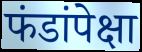
फंडांपेक्षा